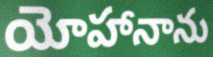
యోహానాను